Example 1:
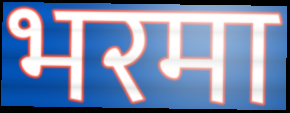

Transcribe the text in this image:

भरमा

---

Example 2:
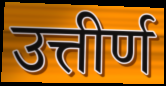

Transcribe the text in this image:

उत्तीर्ण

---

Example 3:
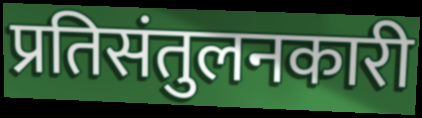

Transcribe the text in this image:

प्रतिसंतुलनकारी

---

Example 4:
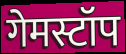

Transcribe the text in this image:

गेमस्टॉप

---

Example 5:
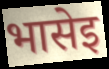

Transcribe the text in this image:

भासेइ